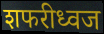
शफरीध्वज